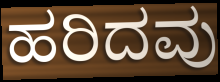
ಹರಿದವು